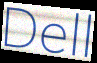
Dell